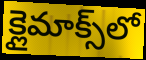
క్లైమాక్స్‌లో